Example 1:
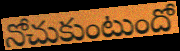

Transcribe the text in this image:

నోచుకుంటుందో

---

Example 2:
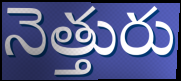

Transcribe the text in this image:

నెత్తురు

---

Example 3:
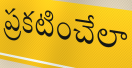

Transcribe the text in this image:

ప్రకటించేలా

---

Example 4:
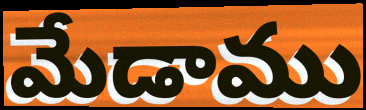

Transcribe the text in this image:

మేడాము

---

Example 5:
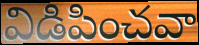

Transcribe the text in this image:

విడిపించవా